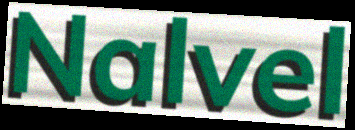
Nalvel